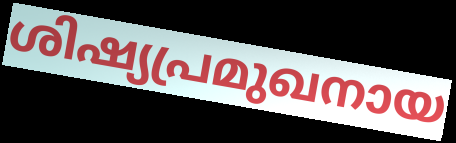
ശിഷ്യപ്രമുഖനായ